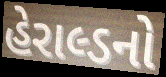
હેરાલ્ડનો